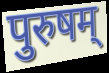
पुरुषम्